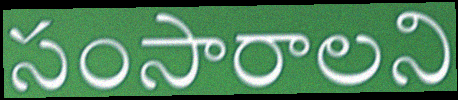
సంసారాలని